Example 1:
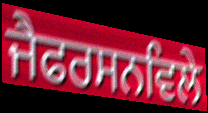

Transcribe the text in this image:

ਜੈਫਰਸਨਵਿਲੇ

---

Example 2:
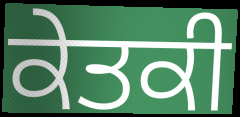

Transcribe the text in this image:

ਕੇਤਕੀ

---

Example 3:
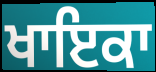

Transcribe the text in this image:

ਖਾਇਕਾ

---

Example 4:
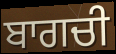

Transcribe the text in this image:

ਬਾਗਚੀ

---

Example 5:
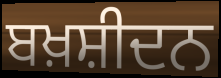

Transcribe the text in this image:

ਬਖ਼ਸ਼ੀਦਨ